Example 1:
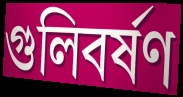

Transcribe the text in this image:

গুলিবৰ্ষণ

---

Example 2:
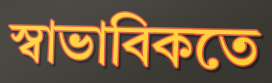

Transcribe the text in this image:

স্বাভাবিকতে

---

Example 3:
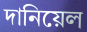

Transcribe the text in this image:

দানিয়েল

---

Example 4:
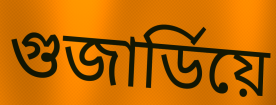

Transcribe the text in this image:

গুজাৰ্ডিয়ে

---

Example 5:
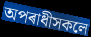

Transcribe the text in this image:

অপৰাধীসকলে